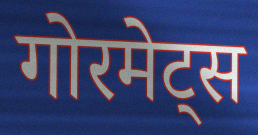
गोरमेट्स